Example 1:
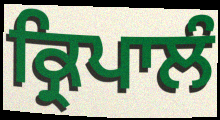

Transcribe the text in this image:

ਕ੍ਰਿਪਾਲੰ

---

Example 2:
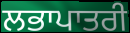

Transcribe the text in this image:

ਲਭਾਪਾਤਰੀ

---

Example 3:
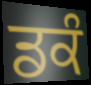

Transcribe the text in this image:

ਡਕੰ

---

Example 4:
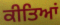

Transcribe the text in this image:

ਕੀਤਿਆਂ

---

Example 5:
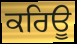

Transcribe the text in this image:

ਕਰਿਊ